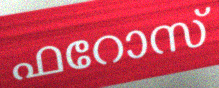
ഫറോസ്